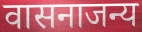
वासनाजन्य